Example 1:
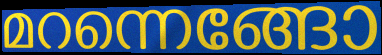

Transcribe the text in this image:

മറന്നെങ്ങോ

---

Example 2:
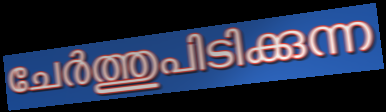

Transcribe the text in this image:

ചേർത്തുപിടിക്കുന്ന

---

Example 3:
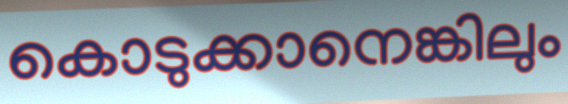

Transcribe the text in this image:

കൊടുക്കാനെങ്കിലും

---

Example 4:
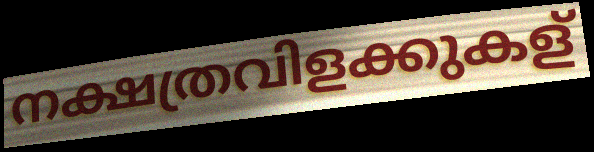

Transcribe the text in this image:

നക്ഷത്രവിളക്കുകള്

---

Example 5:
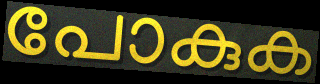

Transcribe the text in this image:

പോകുക